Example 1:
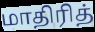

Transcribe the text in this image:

மாதிரித்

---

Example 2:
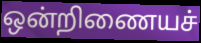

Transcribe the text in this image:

ஒன்றிணையச்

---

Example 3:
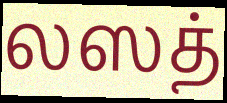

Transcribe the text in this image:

லஸத்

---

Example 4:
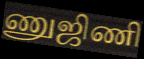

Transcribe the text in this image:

ணுஜிணி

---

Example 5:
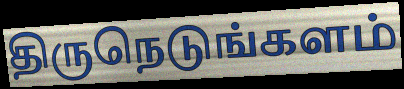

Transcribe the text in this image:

திருநெடுங்களம்